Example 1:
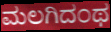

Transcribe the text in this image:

ಮಲಗಿದಂಥ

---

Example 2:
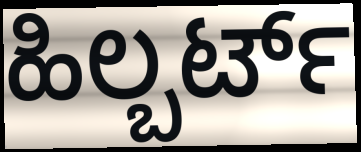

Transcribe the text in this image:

ಹಿಲ್ಬರ್ಟ್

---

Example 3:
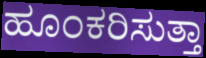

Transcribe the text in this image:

ಹೂಂಕರಿಸುತ್ತಾ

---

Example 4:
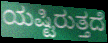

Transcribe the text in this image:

ಯಷ್ಟಿರುತ್ತದೆ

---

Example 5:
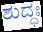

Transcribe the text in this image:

ಶುದ್ಧಃ